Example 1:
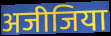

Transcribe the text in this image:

अजीजिया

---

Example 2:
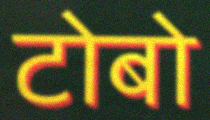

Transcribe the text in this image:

टोबो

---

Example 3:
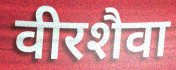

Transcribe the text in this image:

वीरशैवा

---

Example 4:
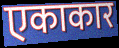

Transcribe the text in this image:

एकाकार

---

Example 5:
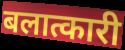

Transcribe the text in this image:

बलात्कारी